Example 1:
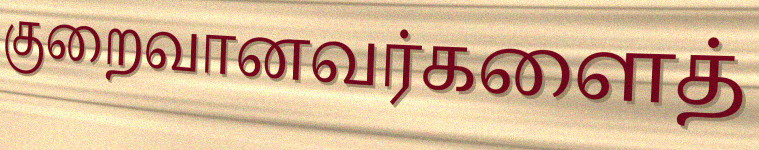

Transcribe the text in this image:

குறைவானவர்களைத்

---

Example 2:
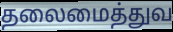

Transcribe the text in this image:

தலைமைத்துவ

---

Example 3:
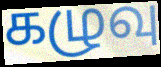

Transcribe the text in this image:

கழுவு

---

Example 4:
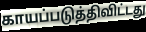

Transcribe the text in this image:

காயப்படுத்திவிட்டது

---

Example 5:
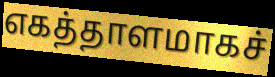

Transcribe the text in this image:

எகத்தாளமாகச்